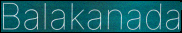
Balakanada